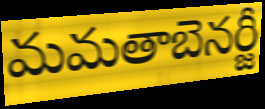
మమతాబెనర్జీ